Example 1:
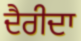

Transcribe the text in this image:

ਦੈਰੀਦਾ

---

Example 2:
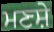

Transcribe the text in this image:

ਮਣਸ਼ੇ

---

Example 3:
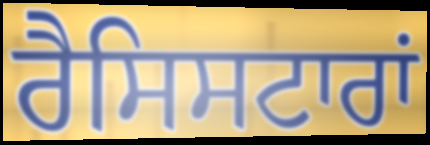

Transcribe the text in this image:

ਰੈਸਿਸਟਾਰਾਂ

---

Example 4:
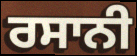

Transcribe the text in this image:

ਰਸਾਨੀ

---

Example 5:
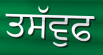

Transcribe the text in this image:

ਤਸੱਵੁਫ